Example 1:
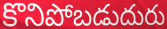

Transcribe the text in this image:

కొనిపోబడుదురు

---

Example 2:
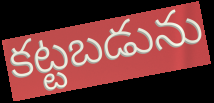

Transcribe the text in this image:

కట్టబడును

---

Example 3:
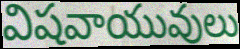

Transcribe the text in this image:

విషవాయువులు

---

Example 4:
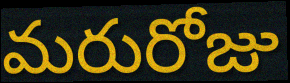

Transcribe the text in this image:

మరురోజు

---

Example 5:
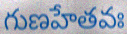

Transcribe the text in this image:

గుణహేతవః